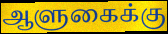
ஆளுகைக்கு